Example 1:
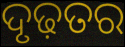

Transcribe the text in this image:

ଦୃଢ଼ତର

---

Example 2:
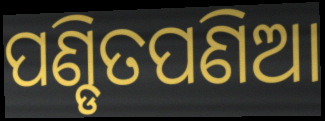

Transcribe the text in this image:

ପଣ୍ଡିତପଣିଆ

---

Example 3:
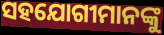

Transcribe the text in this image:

ସହଯୋଗୀମାନଙ୍କୁ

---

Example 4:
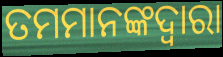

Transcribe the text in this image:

ତମମାନଙ୍କଦ୍ଵାରା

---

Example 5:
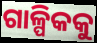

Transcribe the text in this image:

ଗାଳ୍ପିକକୁ